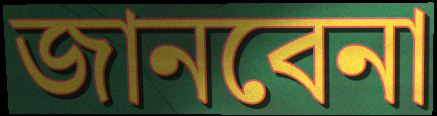
জানবেনা